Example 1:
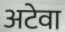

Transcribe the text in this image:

अटेवा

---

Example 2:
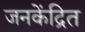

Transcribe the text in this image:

जनकेंद्रित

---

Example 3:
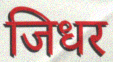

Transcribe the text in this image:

जिधर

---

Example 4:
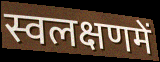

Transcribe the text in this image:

स्वलक्षणमें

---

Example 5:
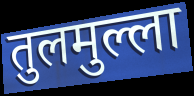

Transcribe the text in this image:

तुलमुल्ला